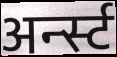
अर्न्स्ट